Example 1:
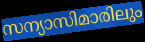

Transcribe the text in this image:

സന്യാസിമാരിലും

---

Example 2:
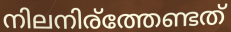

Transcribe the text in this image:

നിലനിര്ത്തേണ്ടത്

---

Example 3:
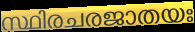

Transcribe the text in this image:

സ്ഥിരചരജാതയഃ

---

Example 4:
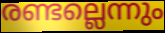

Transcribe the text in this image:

രണ്ടല്ലെന്നും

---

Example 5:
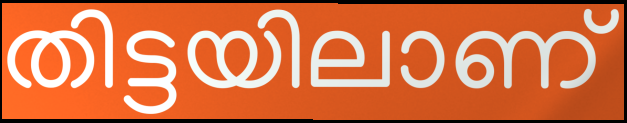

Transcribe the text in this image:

തിട്ടയിലാണ്